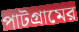
পাটগ্রামের